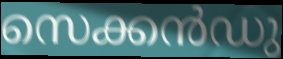
സെക്കൻഡു